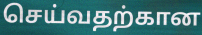
செய்வதற்கான